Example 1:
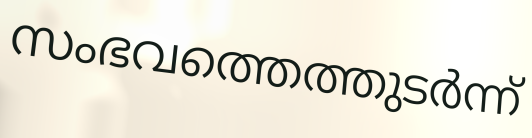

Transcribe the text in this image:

സംഭവത്തെത്തുടർന്ന്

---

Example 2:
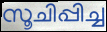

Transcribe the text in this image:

സൂചിപ്പിച്ച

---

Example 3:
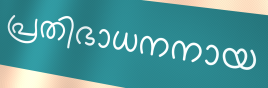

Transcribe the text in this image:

പ്രതിഭാധനനായ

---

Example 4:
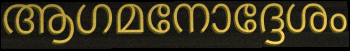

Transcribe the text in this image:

ആഗമനോദ്ദേശം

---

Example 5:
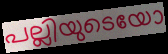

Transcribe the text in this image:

പല്ലിയുടെയോ